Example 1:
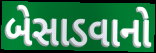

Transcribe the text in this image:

બેસાડવાનો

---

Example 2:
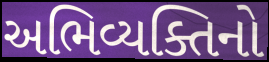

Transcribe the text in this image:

અભિવ્યક્તિનો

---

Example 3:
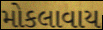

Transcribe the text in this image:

મોકલાવાય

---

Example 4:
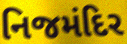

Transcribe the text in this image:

નિજમંદિર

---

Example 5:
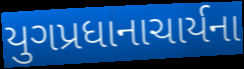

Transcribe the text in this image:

યુગપ્રધાનાચાર્યના